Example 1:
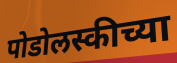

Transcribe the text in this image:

पोडोलस्कीच्या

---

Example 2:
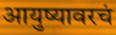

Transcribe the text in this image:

आयुष्यावरचं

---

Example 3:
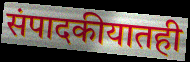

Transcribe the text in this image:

संपादकीयातही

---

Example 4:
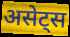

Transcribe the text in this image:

असेट्स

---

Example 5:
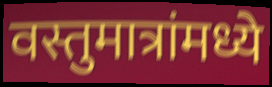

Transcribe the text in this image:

वस्तुमात्रांमध्ये